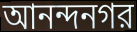
আনন্দনগর